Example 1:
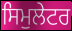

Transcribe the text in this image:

ਸਿਮੁਲੇਟਰ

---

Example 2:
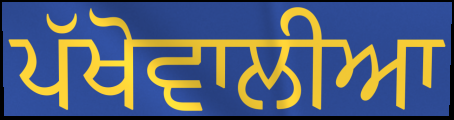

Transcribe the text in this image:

ਪੱਖੋਵਾਲੀਆ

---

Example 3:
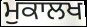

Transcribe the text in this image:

ਮੁਕਾਲਖ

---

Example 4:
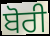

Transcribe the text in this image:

ਬੋਰੀ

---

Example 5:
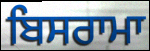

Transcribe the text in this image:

ਬਿਸਰਾਮਾ